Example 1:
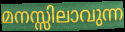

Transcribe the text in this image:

മനസ്സിലാവുന്ന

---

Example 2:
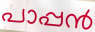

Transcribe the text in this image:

പാപ്പൻ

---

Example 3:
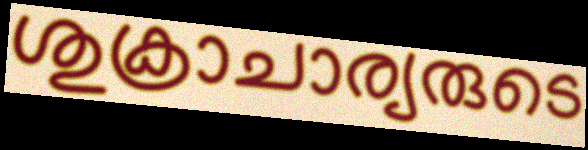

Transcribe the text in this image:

ശുക്രാചാര്യരുടെ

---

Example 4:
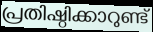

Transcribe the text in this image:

പ്രതിഷ്ഠിക്കാറുണ്ട്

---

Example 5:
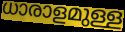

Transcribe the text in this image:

ധാരാളമുള്ള